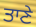
ਤਾਣੇ